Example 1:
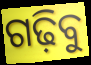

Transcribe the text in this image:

ଗଢ଼ିବୁ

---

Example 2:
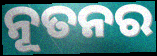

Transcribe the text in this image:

ନୂତନର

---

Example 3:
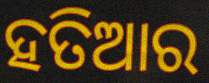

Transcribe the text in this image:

ହତିଆର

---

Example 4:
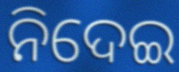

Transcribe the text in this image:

ନିଦେଇ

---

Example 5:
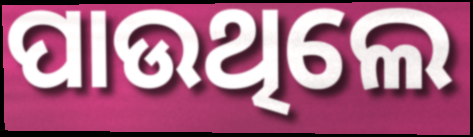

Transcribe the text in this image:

ପାଉଥିଲେ